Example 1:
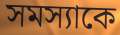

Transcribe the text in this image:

সমস্যাকে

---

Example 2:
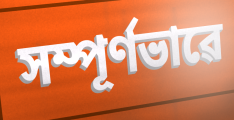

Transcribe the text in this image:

সম্পূৰ্ণভাৱে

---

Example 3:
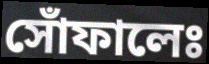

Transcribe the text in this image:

সোঁফালেঃ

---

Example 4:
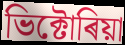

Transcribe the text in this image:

ভিক্টোৰিয়া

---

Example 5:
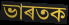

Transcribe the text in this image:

ভাৰতক